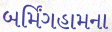
બર્મિંગહામના